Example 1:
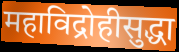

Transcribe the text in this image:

महाविद्रोहीसुद्धा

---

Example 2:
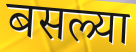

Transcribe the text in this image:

बसल्या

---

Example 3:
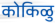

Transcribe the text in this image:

कोकिळु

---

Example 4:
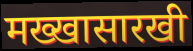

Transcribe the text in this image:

मख्खासारखी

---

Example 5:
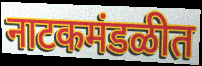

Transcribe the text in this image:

नाटकमंडळीत